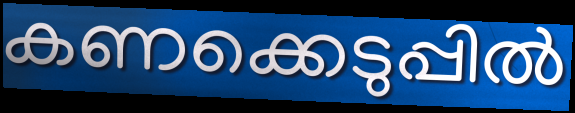
കണക്കെടുപ്പിൽ